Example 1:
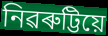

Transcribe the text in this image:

নিৱৰুট্টিয়ে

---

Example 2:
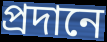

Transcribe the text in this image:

প্ৰদানে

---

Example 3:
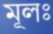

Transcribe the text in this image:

মূলঃ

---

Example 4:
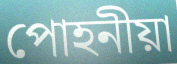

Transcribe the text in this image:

পোহনীয়া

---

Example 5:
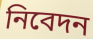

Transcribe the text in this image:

নিবেদন